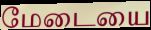
மேடையை